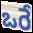
ఒరే